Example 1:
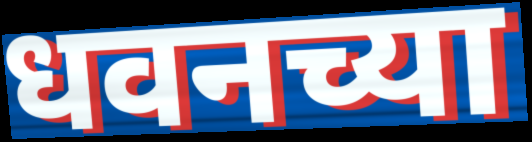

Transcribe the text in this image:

धवनच्या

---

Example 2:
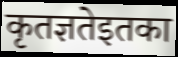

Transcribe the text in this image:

कृतज्ञतेइतका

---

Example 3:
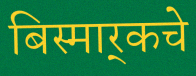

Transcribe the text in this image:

बिस्मार्कचे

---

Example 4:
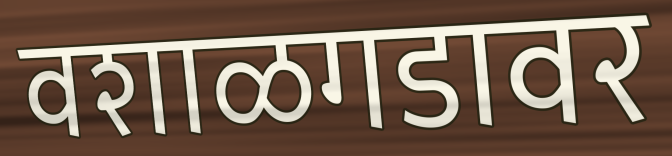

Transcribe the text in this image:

वशाळगडावर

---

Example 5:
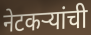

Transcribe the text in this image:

नेटकऱ्यांची